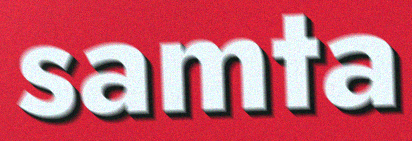
samta